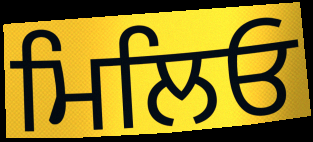
ਮਿਲਿਓ